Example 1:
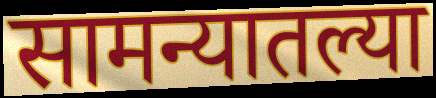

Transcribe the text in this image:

सामन्यातल्या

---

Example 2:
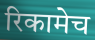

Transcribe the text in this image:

रिकामेच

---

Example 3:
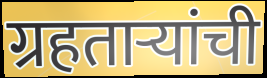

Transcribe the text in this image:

ग्रहताऱ्यांची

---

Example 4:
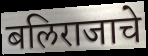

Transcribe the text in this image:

बलिराजाचे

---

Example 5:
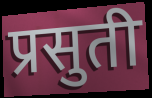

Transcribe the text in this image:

प्रसुती